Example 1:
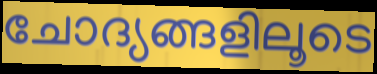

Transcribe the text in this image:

ചോദ്യങ്ങളിലൂടെ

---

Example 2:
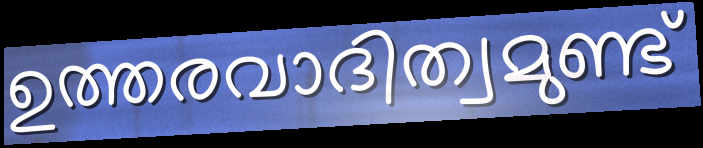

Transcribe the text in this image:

ഉത്തരവാദിത്വമുണ്ട്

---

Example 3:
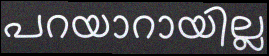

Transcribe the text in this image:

പറയാറായില്ല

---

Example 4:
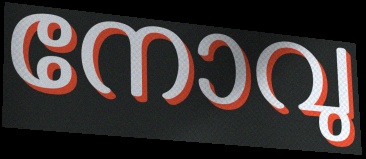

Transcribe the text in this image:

നോവു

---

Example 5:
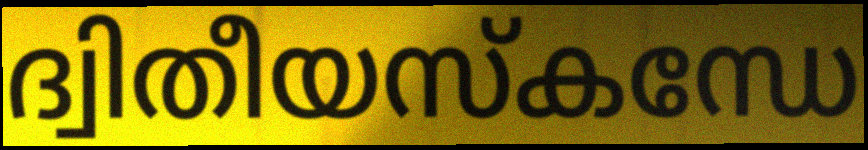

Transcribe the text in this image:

ദ്വിതീയസ്കന്ധേ